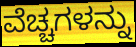
ವೆಚ್ಚಗಳನ್ನು